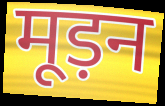
मूड़न